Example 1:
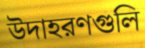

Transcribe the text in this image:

উদাহরণগুলি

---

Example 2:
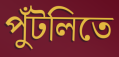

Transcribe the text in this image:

পুঁটলিতে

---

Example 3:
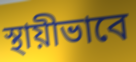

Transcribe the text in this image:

স্থায়ীভাবে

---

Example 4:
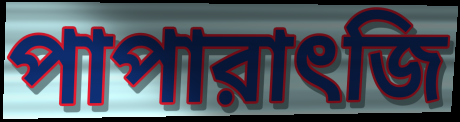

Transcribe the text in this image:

পাপারাৎজি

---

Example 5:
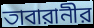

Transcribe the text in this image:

তাবারানীর